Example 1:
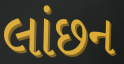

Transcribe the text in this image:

લાંછન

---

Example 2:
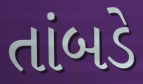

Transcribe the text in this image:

તાંબડે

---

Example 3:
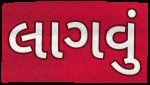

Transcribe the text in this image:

લાગવું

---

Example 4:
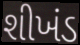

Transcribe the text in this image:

શીખંડ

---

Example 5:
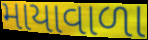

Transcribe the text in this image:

માયાવાળા